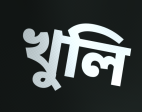
খুলি